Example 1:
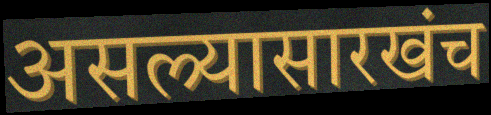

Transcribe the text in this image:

असल्यासारखंच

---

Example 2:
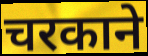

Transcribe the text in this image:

चरकाने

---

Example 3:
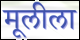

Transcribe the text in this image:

मूलीला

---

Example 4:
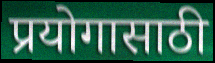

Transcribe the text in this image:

प्रयोगासाठी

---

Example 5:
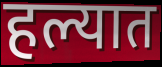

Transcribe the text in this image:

हल्यात